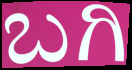
ಬಗಿ